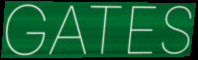
GATES